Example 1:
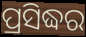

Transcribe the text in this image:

ପ୍ରସିଦ୍ଧର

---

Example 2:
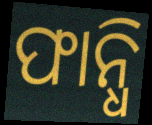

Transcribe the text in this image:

ଫାନ୍ଧି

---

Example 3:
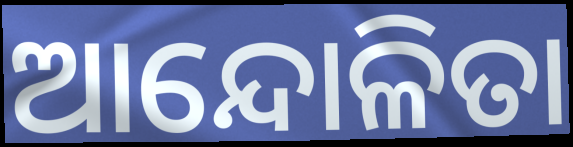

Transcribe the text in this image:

ଆନ୍ଦୋଳିତା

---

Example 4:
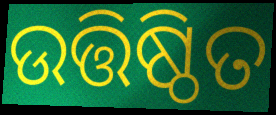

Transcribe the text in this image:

ଉତ୍ତିଷ୍ଠିତ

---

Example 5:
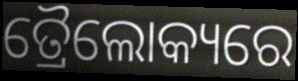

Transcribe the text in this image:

ତ୍ରୈଲୋକ୍ୟରେ